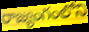
రాజ్యంగంలోని